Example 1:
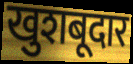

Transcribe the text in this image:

खुशबूदार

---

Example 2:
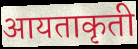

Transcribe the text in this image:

आयताकृती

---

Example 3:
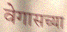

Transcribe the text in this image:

वेगासच्या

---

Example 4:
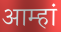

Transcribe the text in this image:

आम्हां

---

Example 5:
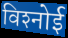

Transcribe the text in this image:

विश्नोई